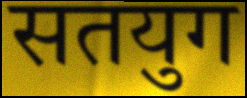
सतयुग